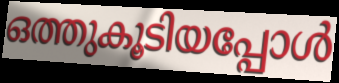
ഒത്തുകൂടിയപ്പോൾ